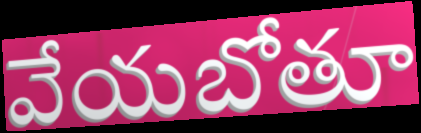
వేయబోతూ